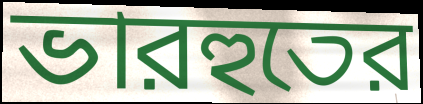
ভারহুতের